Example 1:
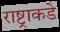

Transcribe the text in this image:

राष्ट्राकडे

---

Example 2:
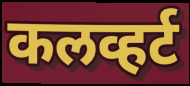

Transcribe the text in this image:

कलव्हर्ट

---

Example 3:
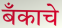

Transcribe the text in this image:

बँकाचे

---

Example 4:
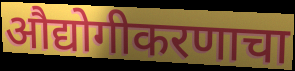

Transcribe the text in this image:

औद्योगीकरणाचा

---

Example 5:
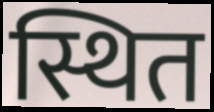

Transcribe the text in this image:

स्थित